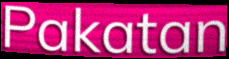
Pakatan